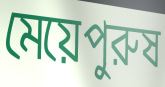
মেয়েপুরুষ